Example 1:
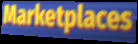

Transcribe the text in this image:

Marketplaces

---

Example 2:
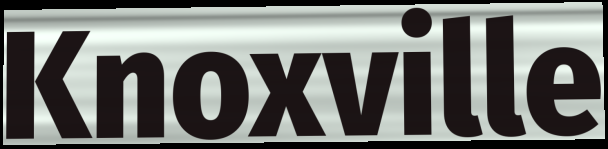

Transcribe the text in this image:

Knoxville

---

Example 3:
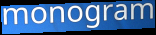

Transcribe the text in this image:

monogram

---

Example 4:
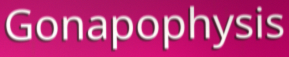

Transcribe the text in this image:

Gonapophysis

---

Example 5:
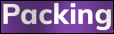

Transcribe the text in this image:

Packing